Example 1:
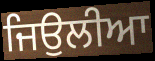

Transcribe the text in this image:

ਜਿਉਲੀਆ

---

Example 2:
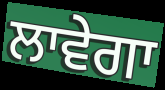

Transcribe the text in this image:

ਲਾਵੇਗਾ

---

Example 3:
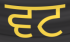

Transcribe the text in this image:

ਵਟ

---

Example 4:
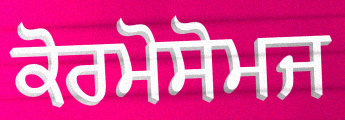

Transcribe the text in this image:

ਕੋਰਮੋਸੋਮਜ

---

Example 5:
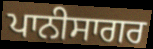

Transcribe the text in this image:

ਪਾਨੀਸਾਗਰ